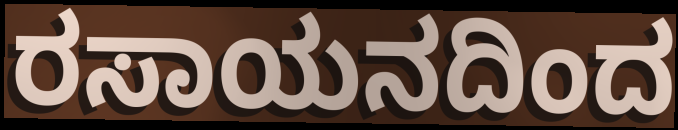
ರಸಾಯನದಿಂದ